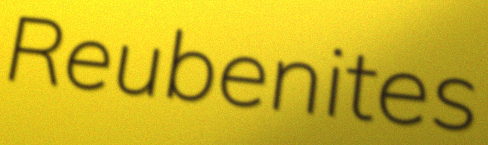
Reubenites